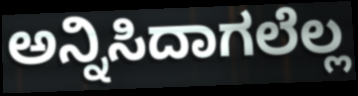
ಅನ್ನಿಸಿದಾಗಲೆಲ್ಲ